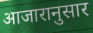
आजारानुसार